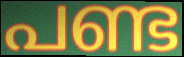
പണ്ട